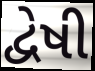
દ્વેષી